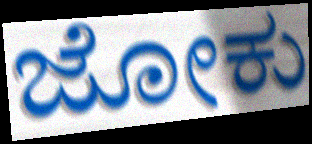
ಜೋಕು